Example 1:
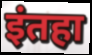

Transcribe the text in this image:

इंतहा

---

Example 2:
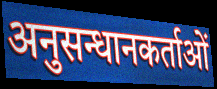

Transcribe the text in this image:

अनुसन्धानकर्ताओं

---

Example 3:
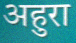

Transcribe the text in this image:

अहुरा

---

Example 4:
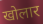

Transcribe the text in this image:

खोलार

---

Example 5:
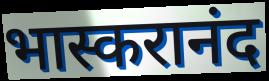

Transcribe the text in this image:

भास्करानंद